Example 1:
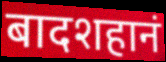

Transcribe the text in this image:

बादशहानं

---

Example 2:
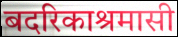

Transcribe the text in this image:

बदरिकाश्रमासी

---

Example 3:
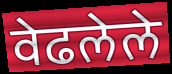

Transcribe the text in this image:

वेढलेले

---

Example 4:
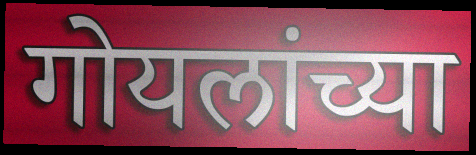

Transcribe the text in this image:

गोयलांच्या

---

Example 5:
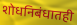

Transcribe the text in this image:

शोधनिबंधातही